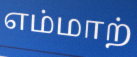
எம்மாற்